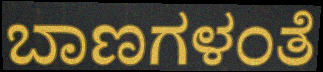
ಬಾಣಗಳಂತೆ